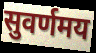
सुवर्णमय